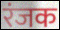
रंजक